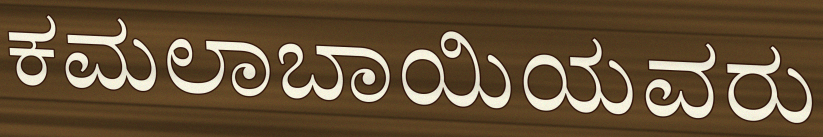
ಕಮಲಾಬಾಯಿಯವರು